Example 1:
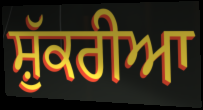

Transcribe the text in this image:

ਸ਼ੁੱਕਰੀਆ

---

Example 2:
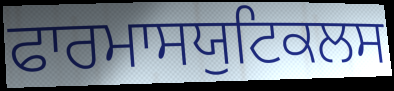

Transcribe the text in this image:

ਫਾਰਮਾਸਯੁਟਿਕਲਸ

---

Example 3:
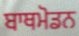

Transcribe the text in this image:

ਬਾਥਮੋਡਨ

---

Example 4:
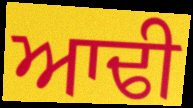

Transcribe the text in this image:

ਆਢੀ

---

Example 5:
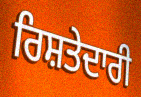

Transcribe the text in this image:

ਰਿਸ਼ਤੇਦਾਰੀ